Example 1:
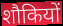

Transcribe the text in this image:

शौकियों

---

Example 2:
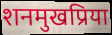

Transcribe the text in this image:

शनमुखप्रिया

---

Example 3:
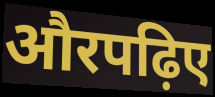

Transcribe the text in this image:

औरपढ़िए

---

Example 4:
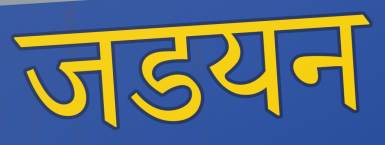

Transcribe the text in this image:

जडयन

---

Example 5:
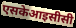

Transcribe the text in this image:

एसकेआइसीसी